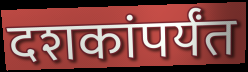
दशकांपर्यंत